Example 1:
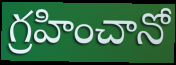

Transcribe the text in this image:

గ్రహించానో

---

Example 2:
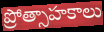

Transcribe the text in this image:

ప్రోత్సాహకాలు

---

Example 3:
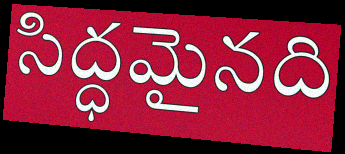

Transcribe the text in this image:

సిద్ధమైనది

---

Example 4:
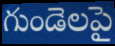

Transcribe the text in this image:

గుండెలపై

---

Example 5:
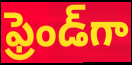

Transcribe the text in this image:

ఫ్రెండ్‌గా